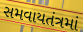
સમવાયતંત્રમાં